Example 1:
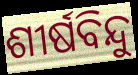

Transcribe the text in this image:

ଶୀର୍ଷବିନ୍ଦୁ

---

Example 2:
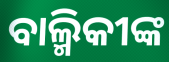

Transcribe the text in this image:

ବାଲ୍ମିକୀଙ୍କ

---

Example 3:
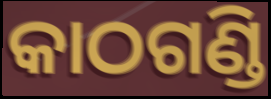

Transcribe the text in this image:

କାଠଗଣ୍ଡି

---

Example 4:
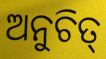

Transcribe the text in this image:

ଅନୁଚିତ୍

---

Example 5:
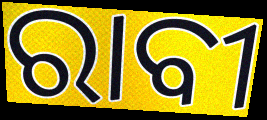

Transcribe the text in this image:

ରାବୀ